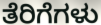
ತೆರಿಗೆಗಳು